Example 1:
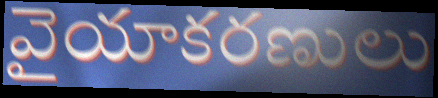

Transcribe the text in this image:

వైయాకరణులు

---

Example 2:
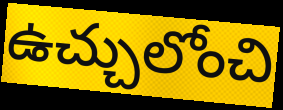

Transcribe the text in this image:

ఉచ్చులోంచి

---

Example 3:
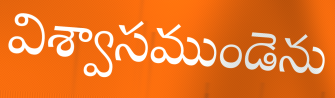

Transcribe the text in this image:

విశ్వాసముండెను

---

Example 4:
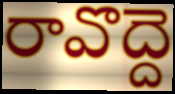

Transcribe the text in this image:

రావొద్దె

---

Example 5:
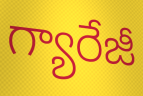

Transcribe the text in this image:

గ్యారేజీ